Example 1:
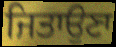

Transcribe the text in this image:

ਜਿਤਾਉਣਾ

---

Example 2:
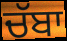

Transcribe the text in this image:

ਚੱਬਾ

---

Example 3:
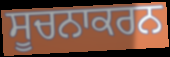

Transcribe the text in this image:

ਸੂਚਨਾਕਰਨ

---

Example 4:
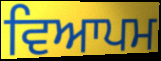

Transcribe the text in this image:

ਵਿਆਪਮ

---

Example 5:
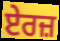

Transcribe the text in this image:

ਏਰਜ਼